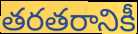
తరతరానికీ